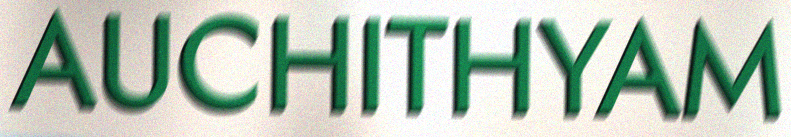
AUCHITHYAM